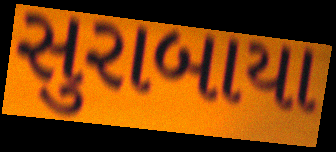
સુરાબાયા